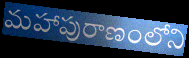
మహాపురాణంలోని